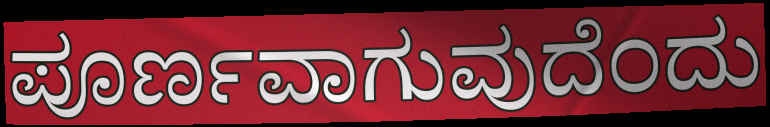
ಪೂರ್ಣವಾಗುವುದೆಂದು